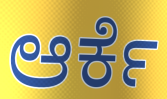
ಆರ್ಕೆ